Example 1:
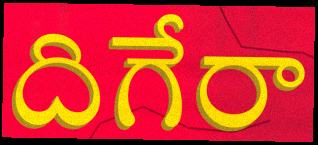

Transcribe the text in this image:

దిగేరా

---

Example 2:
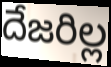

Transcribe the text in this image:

దేజరిల్ల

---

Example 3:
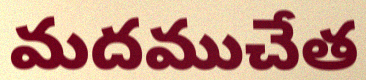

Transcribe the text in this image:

మదముచేత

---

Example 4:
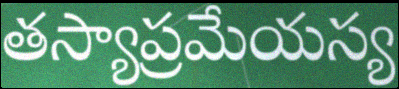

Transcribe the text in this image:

తస్యాప్రమేయస్య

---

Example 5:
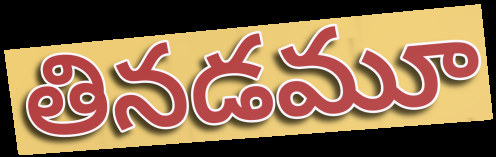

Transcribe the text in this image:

తినడమూ